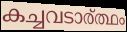
കച്ചവടാര്ത്ഥം